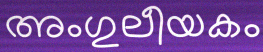
അംഗുലീയകം